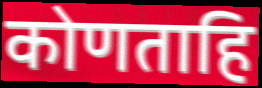
कोणताहि